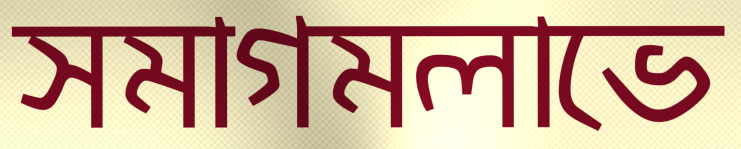
সমাগমলাভে